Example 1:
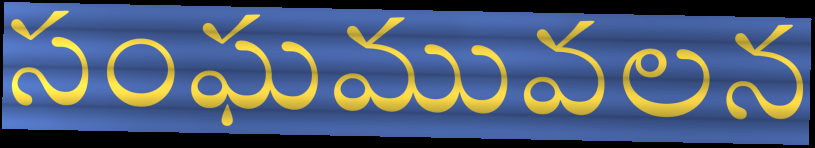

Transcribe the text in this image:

సంఘమువలన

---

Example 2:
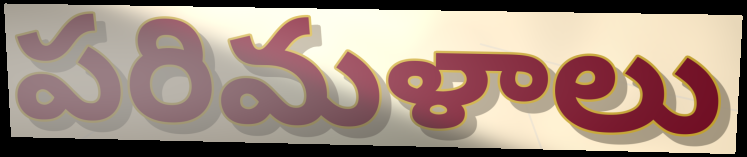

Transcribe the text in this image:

పరిమళాలు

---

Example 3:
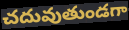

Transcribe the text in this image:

చదువుతుండగా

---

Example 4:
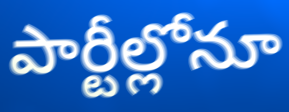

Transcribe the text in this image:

పార్టీల్లోనూ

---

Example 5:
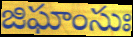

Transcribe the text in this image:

జిఘాంసుః